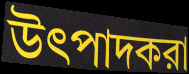
উৎপাদকরা